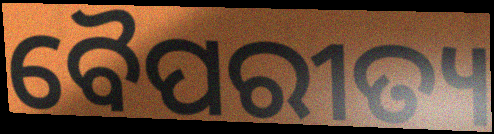
ବୈପରୀତ୍ୟ